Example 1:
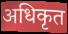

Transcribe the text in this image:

अधिकृत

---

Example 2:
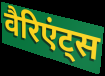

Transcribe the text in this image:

वैरिएंट्स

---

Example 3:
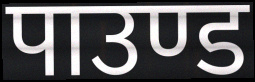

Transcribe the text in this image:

पाउण्‍ड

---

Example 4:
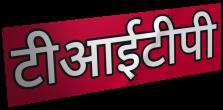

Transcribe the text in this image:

टीआईटीपी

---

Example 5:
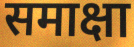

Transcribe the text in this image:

समाक्षा